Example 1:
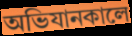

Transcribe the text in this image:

অভিযানকালে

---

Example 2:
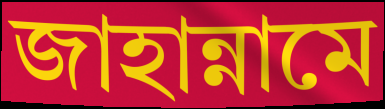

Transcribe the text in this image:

জাহান্নামে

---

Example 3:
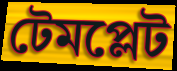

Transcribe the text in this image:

টেমপ্লেট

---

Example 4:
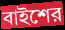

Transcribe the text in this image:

বাইশের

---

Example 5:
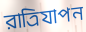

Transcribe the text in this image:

রাত্রিযাপন